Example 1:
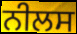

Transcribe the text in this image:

ਨੀਲਸ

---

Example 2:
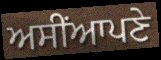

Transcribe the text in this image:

ਅਸੀਂਆਪਣੇ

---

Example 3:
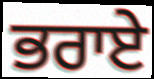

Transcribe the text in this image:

ਭਰਾਏ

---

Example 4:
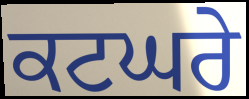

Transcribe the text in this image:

ਕਟਘਰੇ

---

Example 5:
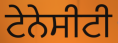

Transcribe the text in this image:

ਟੇਨੇਸੀਟੀ